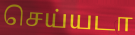
செய்யடா